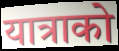
यात्राको